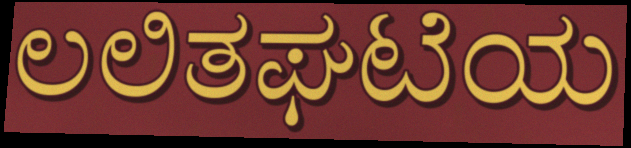
ಲಲಿತಘಟೆಯ